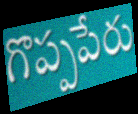
గొప్పపేరు